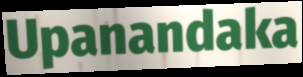
Upanandaka